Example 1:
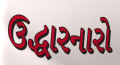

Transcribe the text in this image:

ઉદ્ધારનારો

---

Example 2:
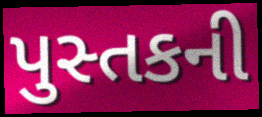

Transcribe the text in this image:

પુસ્તકની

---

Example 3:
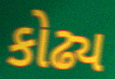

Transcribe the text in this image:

કોઢ્ય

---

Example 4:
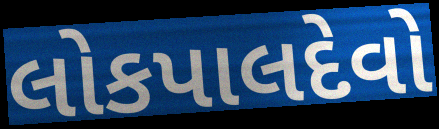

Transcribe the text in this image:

લોકપાલદેવો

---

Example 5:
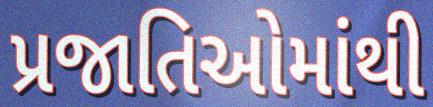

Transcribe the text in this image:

પ્રજાતિઓમાંથી